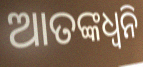
ଆତଙ୍କଧ୍ଵନି